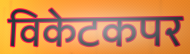
विकेटकपर